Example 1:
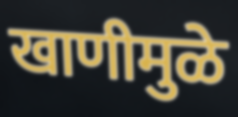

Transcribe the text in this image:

खाणीमुळे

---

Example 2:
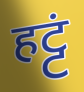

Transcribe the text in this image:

हट्टं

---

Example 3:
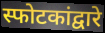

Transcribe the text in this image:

स्फोटकांद्वारे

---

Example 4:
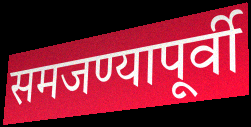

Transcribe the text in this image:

समजण्यापूर्वी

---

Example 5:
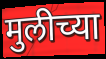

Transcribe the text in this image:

मुलीच्‍या